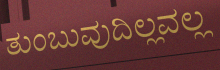
ತುಂಬುವುದಿಲ್ಲವಲ್ಲ